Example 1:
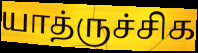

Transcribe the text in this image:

யாத்ருச்சிக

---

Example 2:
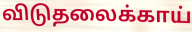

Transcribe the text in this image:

விடுதலைக்காய்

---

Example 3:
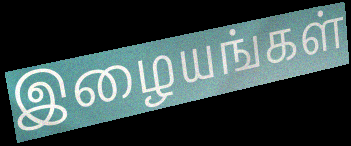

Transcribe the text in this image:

இழையங்கள்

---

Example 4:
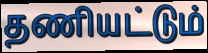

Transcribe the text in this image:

தணியட்டும்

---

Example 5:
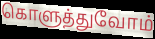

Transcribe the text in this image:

கொளுத்துவோம்